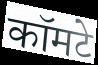
कॉमटे